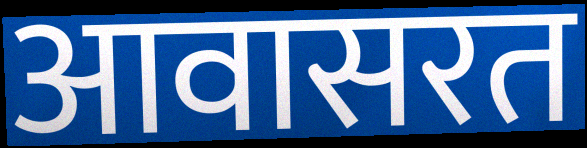
आवासरत